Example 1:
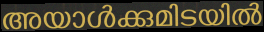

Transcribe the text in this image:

അയാൾക്കുമിടയിൽ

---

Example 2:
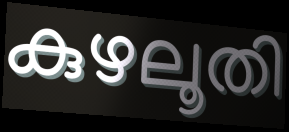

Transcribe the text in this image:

കുഴലൂതി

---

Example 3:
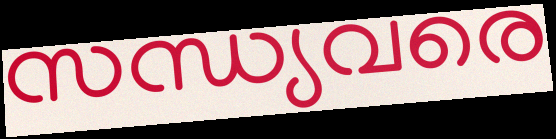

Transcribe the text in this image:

സന്ധ്യവരെ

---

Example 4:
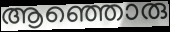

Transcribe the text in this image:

ആഞ്ഞൊരു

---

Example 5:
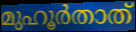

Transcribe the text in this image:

മുഹൂർതാത്